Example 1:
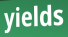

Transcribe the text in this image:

yields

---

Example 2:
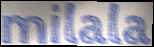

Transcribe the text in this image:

milala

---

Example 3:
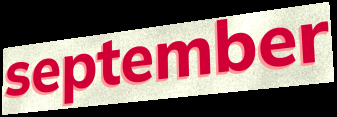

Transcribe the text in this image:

september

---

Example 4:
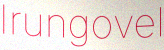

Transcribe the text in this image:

Irungovel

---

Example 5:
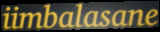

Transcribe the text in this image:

iimbalasane